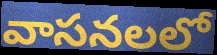
వాసనలలో